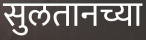
सुलतानच्या